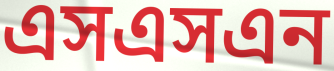
এসএসএন